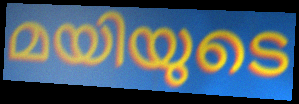
മയിയുടെ